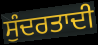
ਸੁੰਦਰਤਾਦੀ